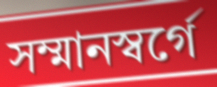
সম্মানস্বর্গে